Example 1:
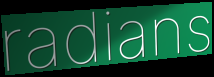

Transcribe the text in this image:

radians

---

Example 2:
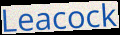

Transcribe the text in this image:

Leacock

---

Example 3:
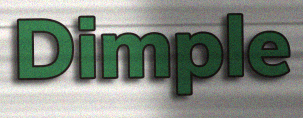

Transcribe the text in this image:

Dimple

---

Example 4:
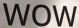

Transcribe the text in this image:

WOW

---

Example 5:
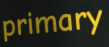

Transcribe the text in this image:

primary